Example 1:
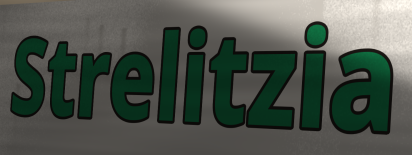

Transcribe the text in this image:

Strelitzia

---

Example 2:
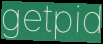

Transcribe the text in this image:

getpid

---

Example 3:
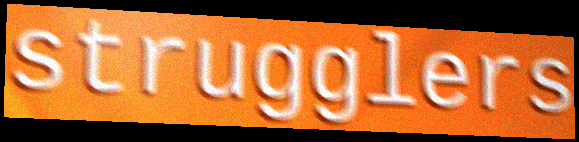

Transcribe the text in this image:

strugglers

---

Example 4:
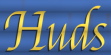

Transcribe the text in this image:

Huds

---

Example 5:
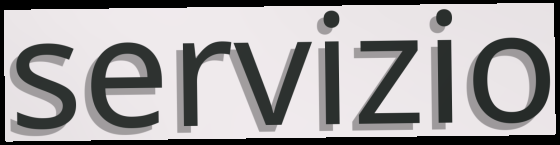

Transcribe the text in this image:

servizio